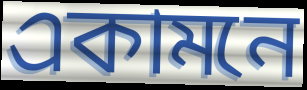
একামনে